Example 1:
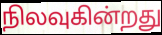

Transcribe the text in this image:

நிலவுகின்றது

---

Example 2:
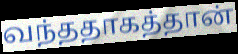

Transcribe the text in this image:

வந்ததாகத்தான்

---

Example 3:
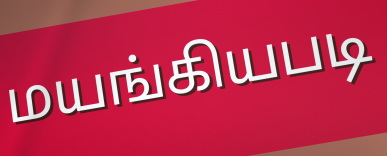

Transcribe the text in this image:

மயங்கியபடி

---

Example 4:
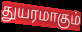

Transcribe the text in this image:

துயரமாகும்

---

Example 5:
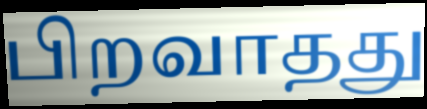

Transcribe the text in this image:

பிறவாதது